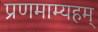
प्रणमाम्यहम्